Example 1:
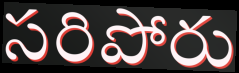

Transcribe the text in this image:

సరిపోరు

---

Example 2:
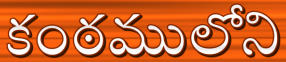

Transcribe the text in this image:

కంఠములోని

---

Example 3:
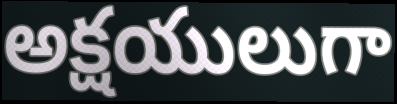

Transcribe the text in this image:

అక్షయులుగా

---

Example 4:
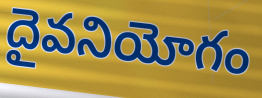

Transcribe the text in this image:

దైవనియోగం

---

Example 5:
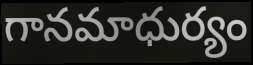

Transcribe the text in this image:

గానమాధుర్యం